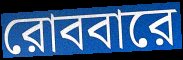
রোববারে